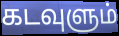
கடவுளும்